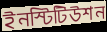
ইনস্টিটিউশন